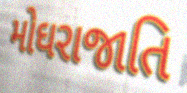
મોઘરાજાતિ